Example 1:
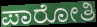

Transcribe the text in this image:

ಪಾರೋತಿ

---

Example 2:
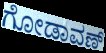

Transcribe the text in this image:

ಗೋಡಾವಣ್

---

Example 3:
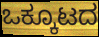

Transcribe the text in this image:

ಒಕ್ಕೂಟದ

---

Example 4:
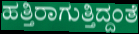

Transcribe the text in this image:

ಹತ್ತಿರಾಗುತ್ತಿದ್ದಂತೆ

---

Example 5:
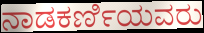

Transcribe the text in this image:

ನಾಡಕರ್ಣಿಯವರು